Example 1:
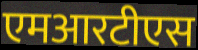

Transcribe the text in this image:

एमआरटीएस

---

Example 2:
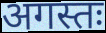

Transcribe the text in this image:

अगस्तः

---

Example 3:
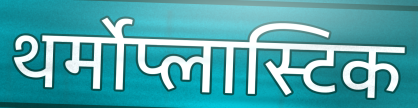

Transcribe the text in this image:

थर्मोप्लास्टिक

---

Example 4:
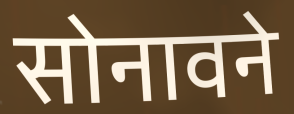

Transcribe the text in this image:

सोनावने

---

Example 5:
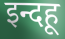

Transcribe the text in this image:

इन्दहू